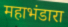
महाभंडारा